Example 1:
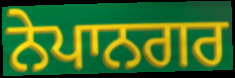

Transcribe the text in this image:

ਨੇਪਾਨਗਰ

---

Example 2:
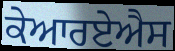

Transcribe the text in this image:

ਕੇਆਰਏਐਸ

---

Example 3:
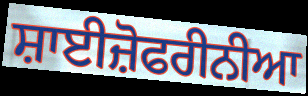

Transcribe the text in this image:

ਸ਼ਾਈਜ਼ੋਫਰੀਨੀਆ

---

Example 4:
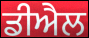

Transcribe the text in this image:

ਡੀਐਲ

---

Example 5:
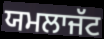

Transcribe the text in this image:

ਯਮਲਾਜੱਟ